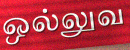
ஒல்லுவ